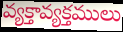
వ్యక్తావ్యక్తములు